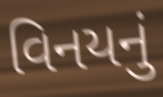
વિનયનું